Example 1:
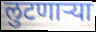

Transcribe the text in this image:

लुटणाऱ्या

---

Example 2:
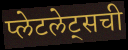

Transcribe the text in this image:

प्लेटलेट्‌सची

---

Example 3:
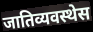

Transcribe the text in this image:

जातिव्यवस्थेस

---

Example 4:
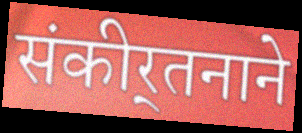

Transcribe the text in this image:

संकीर्तनाने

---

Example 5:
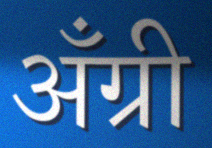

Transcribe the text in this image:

अँग्री